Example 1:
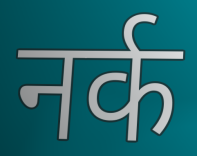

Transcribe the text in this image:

नर्क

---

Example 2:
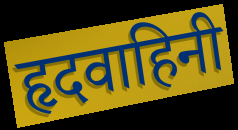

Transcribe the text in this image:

हृदवाहिनी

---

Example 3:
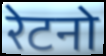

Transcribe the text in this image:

रेटनो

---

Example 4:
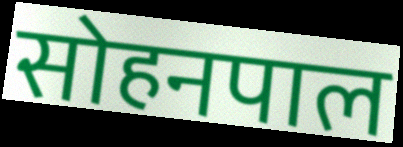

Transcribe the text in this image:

सोहनपाल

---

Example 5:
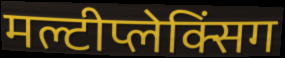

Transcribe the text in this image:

मल्टीप्लेक्सिंग